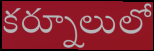
కర్నూలులో